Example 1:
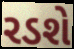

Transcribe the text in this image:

રડશે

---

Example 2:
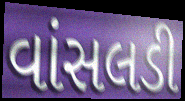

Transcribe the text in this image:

વાંસલડી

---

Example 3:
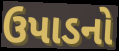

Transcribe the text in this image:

ઉપાડનો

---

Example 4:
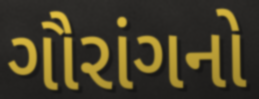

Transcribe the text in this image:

ગૌરાંગનો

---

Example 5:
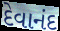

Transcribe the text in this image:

દેવાનંદ